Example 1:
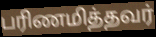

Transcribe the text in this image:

பரிணமித்தவர்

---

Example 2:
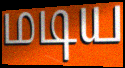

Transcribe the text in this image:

மடிய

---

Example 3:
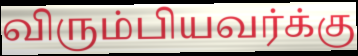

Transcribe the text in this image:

விரும்பியவர்க்கு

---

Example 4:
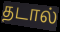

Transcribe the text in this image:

தடால்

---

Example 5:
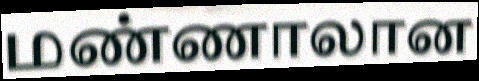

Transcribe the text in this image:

மண்ணாலான